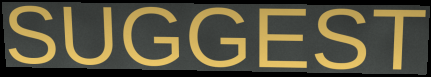
SUGGEST